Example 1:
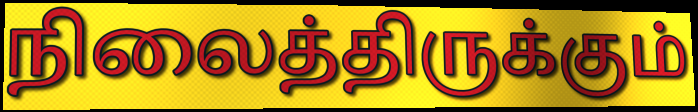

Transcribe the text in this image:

நிலைத்திருக்கும்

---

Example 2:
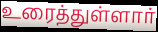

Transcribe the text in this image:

உரைத்துள்ளார்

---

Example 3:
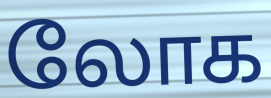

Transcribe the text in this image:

லோக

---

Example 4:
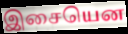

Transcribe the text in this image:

இசையென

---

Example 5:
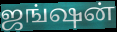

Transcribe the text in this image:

ஜங்ஷன்